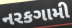
નરકગામી